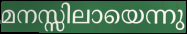
മനസ്സിലായെന്നു